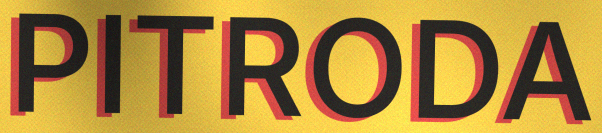
PITRODA